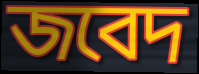
জবেদ